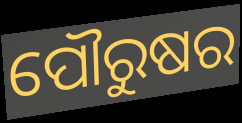
ପୌରୁଷର